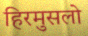
हिरमुसलो